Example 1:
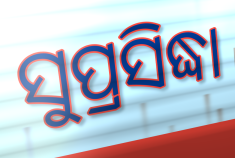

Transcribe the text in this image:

ସୁପ୍ରସିଦ୍ଧା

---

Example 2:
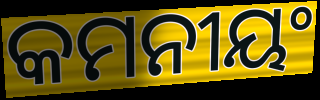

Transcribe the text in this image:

କମନୀୟଂ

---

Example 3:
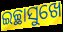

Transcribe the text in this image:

ଇଚ୍ଛାସୁଖେ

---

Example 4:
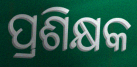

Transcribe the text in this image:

ପ୍ରଶିକ୍ଷକ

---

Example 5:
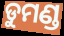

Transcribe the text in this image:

ଡୁମଣ୍ଡ